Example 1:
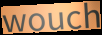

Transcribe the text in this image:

wouch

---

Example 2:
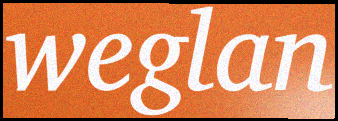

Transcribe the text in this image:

weglan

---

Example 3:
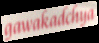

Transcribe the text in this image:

gawakadchya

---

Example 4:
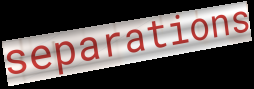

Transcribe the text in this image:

separations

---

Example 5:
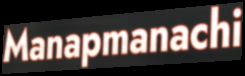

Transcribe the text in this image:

Manapmanachi